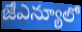
జేఎన్యూలో